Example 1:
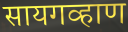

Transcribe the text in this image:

सायगव्हाण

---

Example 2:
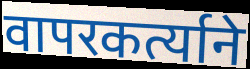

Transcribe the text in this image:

वापरकर्त्याने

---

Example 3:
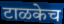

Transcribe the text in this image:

टाळकेच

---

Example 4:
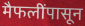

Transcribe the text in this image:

मैफलींपासून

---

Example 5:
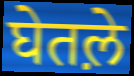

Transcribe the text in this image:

घेतल़े